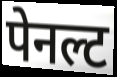
पेनल्ट